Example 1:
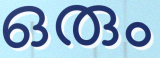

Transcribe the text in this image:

ഒരും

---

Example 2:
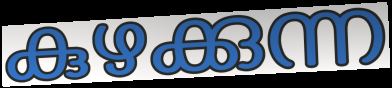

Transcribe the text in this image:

കുഴക്കുന്ന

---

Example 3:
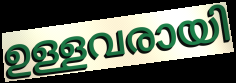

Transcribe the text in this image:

ഉള്ളവരായി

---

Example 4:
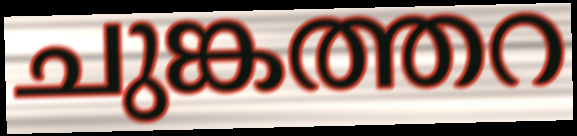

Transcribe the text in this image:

ചുങ്കത്തറ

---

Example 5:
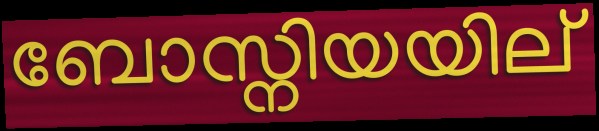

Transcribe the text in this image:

ബോസ്നിയയില്